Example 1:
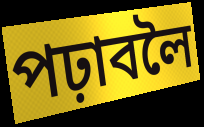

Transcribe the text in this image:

পঢ়াবলৈ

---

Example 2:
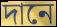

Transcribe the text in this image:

দানে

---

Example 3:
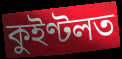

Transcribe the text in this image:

কুইণ্টলত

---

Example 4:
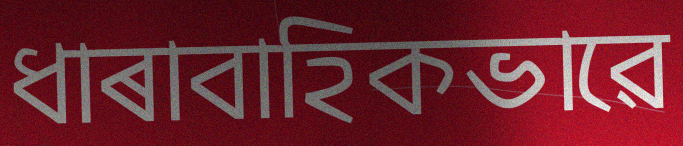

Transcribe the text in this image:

ধাৰাবাহিকভাৱে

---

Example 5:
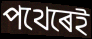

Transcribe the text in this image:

পথেৰেই